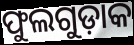
ଫୁଲଗୁଡ଼ାକ